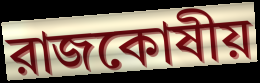
রাজকোষীয়